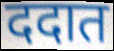
ददात